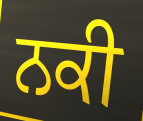
ਨਕੀ